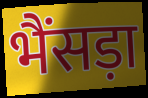
भैंसड़ा